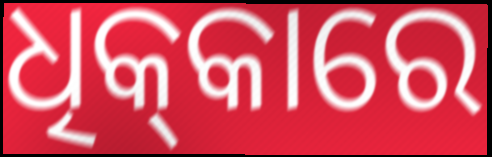
ଧିକ୍‌କାରେ